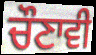
ਚੌਣਾਵੀ